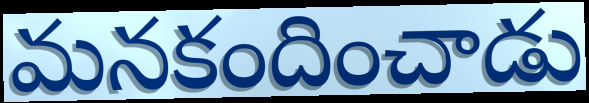
మనకందించాడు